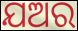
ଯଅର